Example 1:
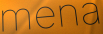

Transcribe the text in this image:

mena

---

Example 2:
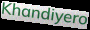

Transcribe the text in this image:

Khandiyero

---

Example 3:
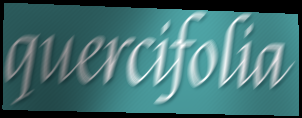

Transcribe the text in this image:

quercifolia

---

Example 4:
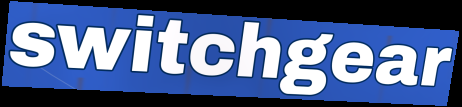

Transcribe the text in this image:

switchgear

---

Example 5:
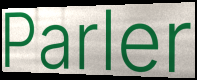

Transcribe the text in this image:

Parler